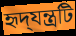
হৃদ্‌যন্ত্রটি